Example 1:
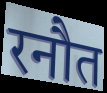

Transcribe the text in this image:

रनौत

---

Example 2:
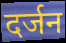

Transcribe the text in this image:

दर्जन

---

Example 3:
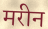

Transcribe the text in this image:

मरीन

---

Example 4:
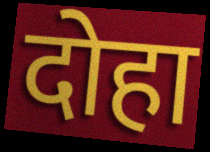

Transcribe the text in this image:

दोहा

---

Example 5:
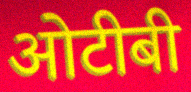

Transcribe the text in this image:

ओटीबी